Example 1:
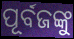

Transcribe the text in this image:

ପୂର୍ବଜଙ୍କୁ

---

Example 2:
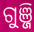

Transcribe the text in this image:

ଗୁଞ୍ଜି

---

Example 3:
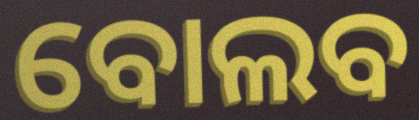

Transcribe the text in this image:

ବୋଲବ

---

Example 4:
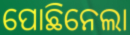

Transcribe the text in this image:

ପୋଛିନେଲା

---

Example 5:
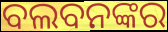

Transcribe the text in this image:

ବଲବନଙ୍କର